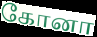
கோனா